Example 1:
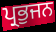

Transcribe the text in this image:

ਪ੍ਰਭੁਜਨ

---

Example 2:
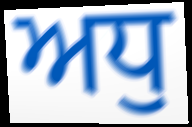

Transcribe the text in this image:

ਅਧੁ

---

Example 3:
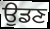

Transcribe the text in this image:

ਉਡਣ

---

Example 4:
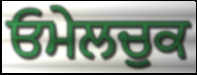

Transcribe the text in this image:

ਓਮੇਲਚੁਕ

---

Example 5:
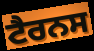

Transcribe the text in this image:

ਟੈਰਨਸ